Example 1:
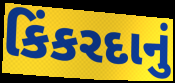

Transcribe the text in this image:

કિંકરદાનું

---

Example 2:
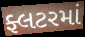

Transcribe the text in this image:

ફ્લટરમાં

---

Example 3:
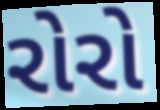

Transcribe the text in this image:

રોરો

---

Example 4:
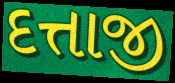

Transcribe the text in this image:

દત્તાજી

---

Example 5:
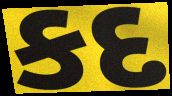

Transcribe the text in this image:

કદ